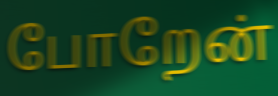
போறேன்